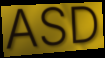
ASD